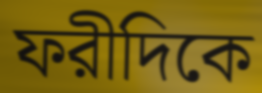
ফরীদিকে